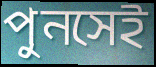
পুনসেই